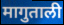
मागुताली